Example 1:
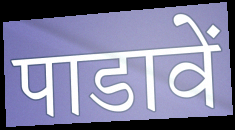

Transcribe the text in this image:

पाडावें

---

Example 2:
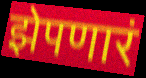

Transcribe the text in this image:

झेपणारं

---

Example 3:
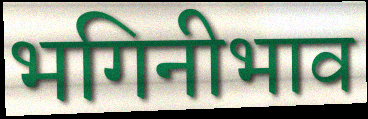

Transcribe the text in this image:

भगिनीभाव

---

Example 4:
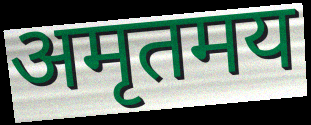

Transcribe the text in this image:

अमृतमय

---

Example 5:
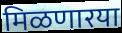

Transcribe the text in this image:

मिळणारया